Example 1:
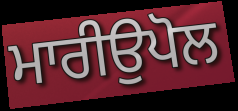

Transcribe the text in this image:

ਮਾਰੀਉਪੋਲ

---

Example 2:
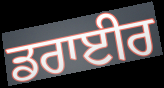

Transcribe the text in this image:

ਡਰਾਈਰ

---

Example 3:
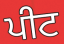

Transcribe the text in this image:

ਪੀਟ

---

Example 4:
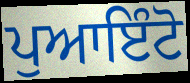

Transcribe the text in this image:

ਪੁਆਇੰਟੋ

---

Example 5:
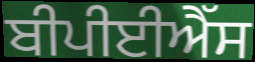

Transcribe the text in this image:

ਬੀਪੀਈਐੱਸ